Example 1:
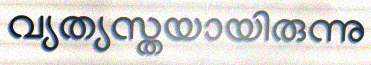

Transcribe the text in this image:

വ്യത്യസ്തയായിരുന്നു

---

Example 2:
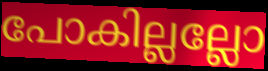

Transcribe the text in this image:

പോകില്ലല്ലോ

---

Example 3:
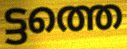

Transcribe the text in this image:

ട്ടത്തെ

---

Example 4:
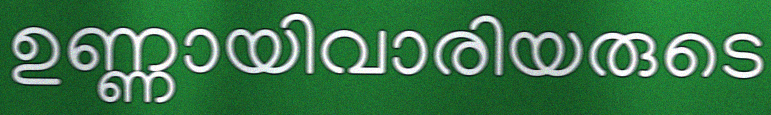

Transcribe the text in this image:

ഉണ്ണായിവാരിയരുടെ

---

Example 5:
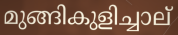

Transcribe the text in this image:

മുങ്ങികുളിച്ചാല്